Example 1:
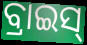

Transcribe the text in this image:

ବ୍ରାଇସ୍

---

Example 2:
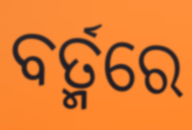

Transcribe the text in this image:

ବର୍ତ୍ମରେ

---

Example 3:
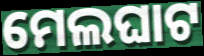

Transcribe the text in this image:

ମେଲଘାଟ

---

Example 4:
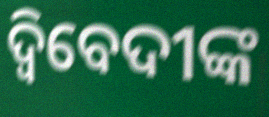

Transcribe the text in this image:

ଦ୍ବିବେଦୀଙ୍କ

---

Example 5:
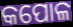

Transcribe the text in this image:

କପୋଳ